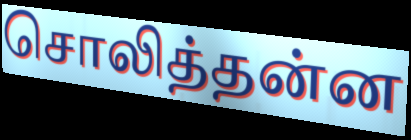
சொலித்தன்ன